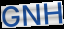
GNH